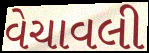
વેચાવલી